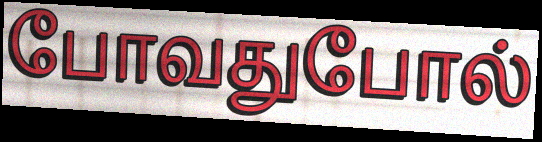
போவதுபோல்